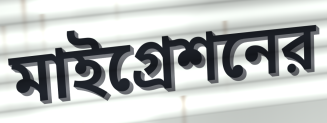
মাইগ্রেশনের